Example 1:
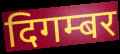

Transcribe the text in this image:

दिगम्बर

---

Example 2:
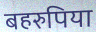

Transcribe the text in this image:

बहरुपिया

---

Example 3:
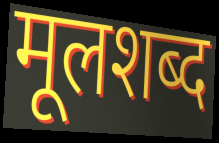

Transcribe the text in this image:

मूलशब्द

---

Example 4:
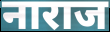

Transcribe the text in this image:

नाराज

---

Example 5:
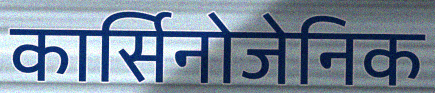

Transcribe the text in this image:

कार्सिनोजेनिक